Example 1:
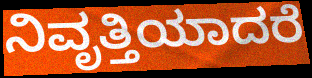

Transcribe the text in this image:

ನಿವೃತ್ತಿಯಾದರೆ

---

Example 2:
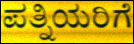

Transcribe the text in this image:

ಪತ್ನಿಯರಿಗೆ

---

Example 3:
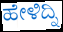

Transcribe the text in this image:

ಹೇಳಿದ್ನಿ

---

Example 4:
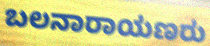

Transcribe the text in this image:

ಬಲನಾರಾಯಣರು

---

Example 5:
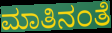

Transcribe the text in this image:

ಮಾತಿನಂತೆ